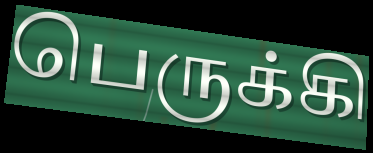
பெருக்கி